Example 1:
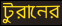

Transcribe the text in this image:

টুরানের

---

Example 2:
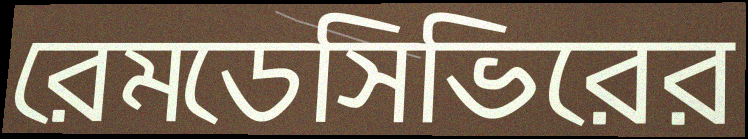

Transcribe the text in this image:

রেমডেসিভিরের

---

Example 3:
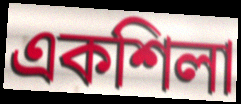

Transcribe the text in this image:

একশিলা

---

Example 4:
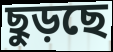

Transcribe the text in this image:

ছুড়ছে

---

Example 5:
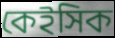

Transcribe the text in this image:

কেইসিক